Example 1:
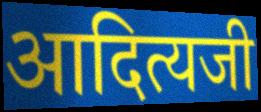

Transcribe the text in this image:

आदित्यजी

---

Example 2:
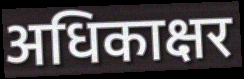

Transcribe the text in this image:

अधिकाक्षर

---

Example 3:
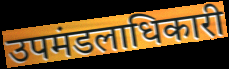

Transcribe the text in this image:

उपमंडलाधिकारी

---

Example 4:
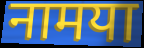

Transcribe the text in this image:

नामया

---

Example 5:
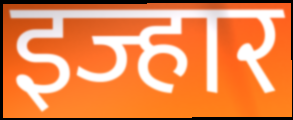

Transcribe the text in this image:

इज्हार